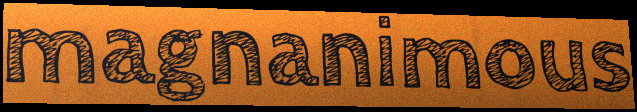
magnanimous